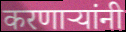
करणाऱ्यांनी